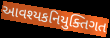
આવશ્યકનિયુક્તિગત